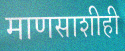
माणसाशीही